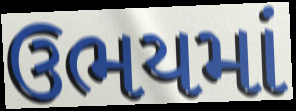
ઉભયમાં